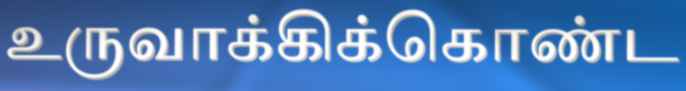
உருவாக்கிக்கொண்ட